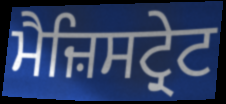
ਮੈਜ਼ਿਸਟ੍ਰੇਟ